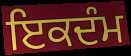
ਇਕਦੰਮ